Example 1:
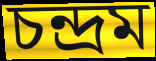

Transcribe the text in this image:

চন্দ্রম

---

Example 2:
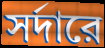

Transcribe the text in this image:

সর্দারে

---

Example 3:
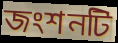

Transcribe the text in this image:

জংশনটি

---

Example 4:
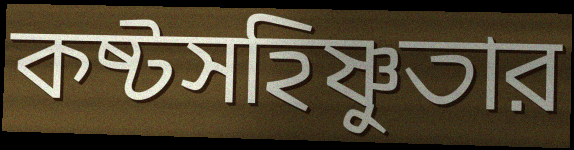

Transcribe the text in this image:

কষ্টসহিষ্ণুতার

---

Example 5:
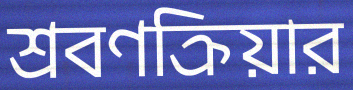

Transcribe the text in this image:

শ্রবণক্রিয়ার